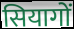
सियागों